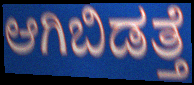
ಆಗಿಬಿಡತ್ತೆ